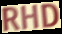
RHD